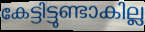
കേട്ടിട്ടുണ്ടാകില്ല